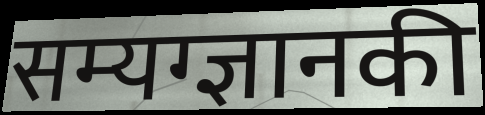
सम्यग्ज्ञानकी